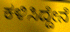
ಕಳಿಸಿದ್ದೇನೆ